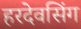
हरदेवसिंग